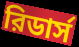
রিডার্স